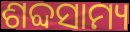
ଶବ୍ଦସାମ୍ୟ